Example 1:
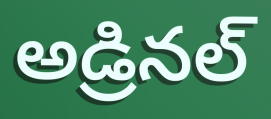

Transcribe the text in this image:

అడ్రినల్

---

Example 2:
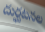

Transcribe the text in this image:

దుర్ఘటనల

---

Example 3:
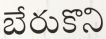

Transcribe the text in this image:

బేరుకొని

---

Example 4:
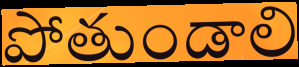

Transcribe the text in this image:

పోతుండాలి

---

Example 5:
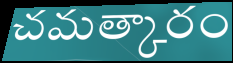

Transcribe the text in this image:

చమత్కారం